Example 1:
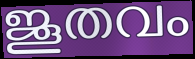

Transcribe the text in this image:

ജൂതവം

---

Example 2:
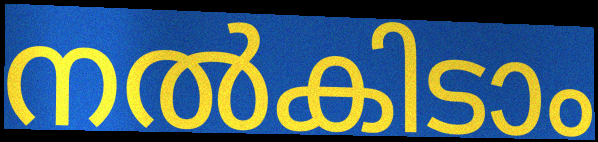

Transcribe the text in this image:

നൽകിടാം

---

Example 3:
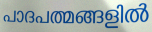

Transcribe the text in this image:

പാദപത്മങ്ങളിൽ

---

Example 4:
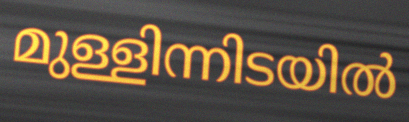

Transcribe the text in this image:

മുള്ളിന്നിടയിൽ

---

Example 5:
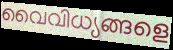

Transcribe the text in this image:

വൈവിധ്യങ്ങളെ